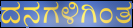
ದನಗಳಿಗಿಂತ